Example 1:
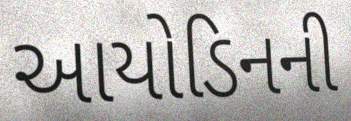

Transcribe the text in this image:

આયોડિનની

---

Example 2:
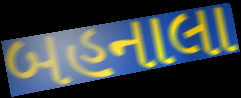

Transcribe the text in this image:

બહનાલા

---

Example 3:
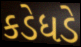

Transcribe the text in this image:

કડેધડે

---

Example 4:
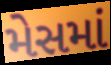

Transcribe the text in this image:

મેસમાં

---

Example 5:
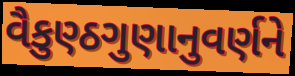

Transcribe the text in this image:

વૈકુણ્ઠગુણાનુવર્ણને